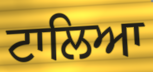
ਟਾਲਿਆ